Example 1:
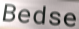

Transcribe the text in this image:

Bedse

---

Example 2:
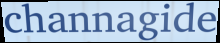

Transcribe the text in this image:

channagide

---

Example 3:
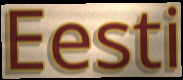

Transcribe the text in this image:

Eesti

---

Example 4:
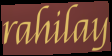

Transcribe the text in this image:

rahilay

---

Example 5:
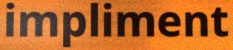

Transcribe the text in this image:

impliment